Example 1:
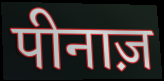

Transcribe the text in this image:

पीनाज़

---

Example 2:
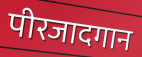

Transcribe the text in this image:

पीरजादगान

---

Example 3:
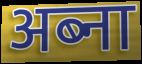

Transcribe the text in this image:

अब्ना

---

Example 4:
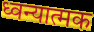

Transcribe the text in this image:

ध्वन्यात्मक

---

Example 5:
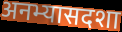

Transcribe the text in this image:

अनभ्यासदशा